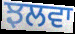
ਝਲਵਾ